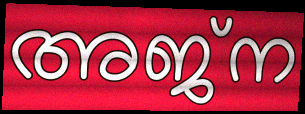
അജ്ന